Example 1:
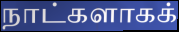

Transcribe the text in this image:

நாட்களாகக்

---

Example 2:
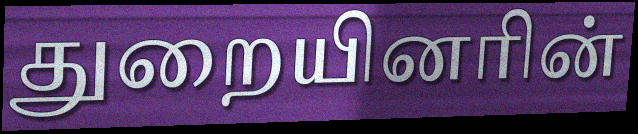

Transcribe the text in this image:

துறையினரின்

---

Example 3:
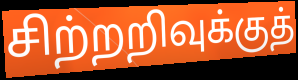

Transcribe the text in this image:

சிற்றறிவுக்குத்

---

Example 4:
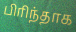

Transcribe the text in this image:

பிரிந்தாக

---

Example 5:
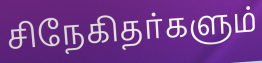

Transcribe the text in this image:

சிநேகிதர்களும்